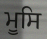
ਮੂਸਿ